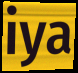
iya